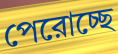
পেরোচ্ছে